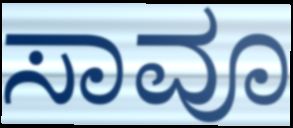
ಸಾವೂ